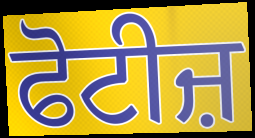
ਫੋਟੀਜ਼